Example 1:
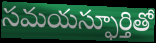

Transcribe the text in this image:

సమయస్ఫూర్తితో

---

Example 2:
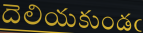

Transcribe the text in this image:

దెలియకుండఁ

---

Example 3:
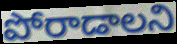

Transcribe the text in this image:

పోరాడాలని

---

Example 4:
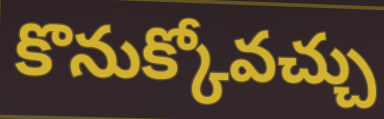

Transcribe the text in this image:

కొనుక్కోవచ్చు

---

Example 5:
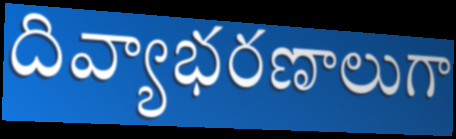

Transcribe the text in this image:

దివ్యాభరణాలుగా